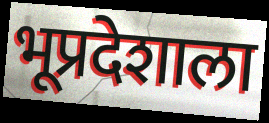
भूप्रदेशाला